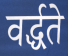
वर्द्धते